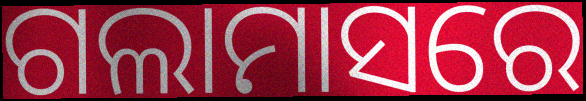
ଗଲାମାସରେ